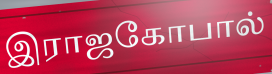
இராஜகோபால்